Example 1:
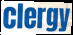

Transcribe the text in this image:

clergy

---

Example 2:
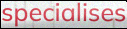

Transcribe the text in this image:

specialises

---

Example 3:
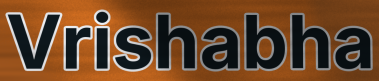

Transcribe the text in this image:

Vrishabha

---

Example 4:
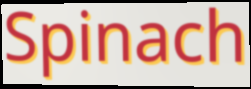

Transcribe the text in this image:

Spinach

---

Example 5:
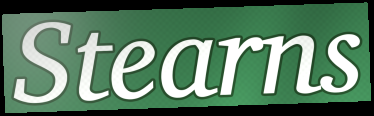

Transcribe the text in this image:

Stearns